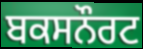
ਬਕਸਨੌਰਟ